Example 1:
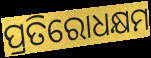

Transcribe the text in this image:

ପ୍ରତିରୋଧକ୍ଷମ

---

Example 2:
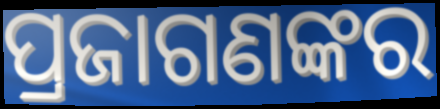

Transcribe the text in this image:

ପ୍ରଜାଗଣଙ୍କର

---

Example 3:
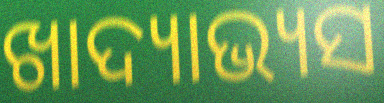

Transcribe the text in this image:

ଖାଦ୍ୟାଭ୍ୟସ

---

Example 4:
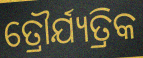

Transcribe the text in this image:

ତ୍ରୌର୍ଯ୍ୟତ୍ରିକ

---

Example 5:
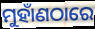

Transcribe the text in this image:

ମୁହାଁଣଠାରେ